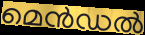
മെൻഡൽ